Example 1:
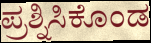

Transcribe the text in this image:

ಪ್ರಶ್ನಿಸಿಕೊಂಡ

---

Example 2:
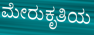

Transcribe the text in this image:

ಮೇರುಕೃತಿಯ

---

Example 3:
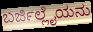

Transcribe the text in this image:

ಬರ್ಜಿಲ್ಲೈಯನು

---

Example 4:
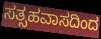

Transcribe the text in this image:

ಸತ್ಸಹವಾಸದಿಂದ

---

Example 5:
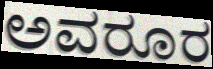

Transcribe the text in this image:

ಅವರೂರ